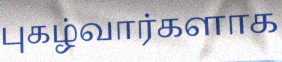
புகழ்வார்களாக